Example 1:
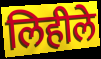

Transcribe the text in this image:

लिहीले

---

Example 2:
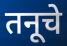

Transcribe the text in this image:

तनूचे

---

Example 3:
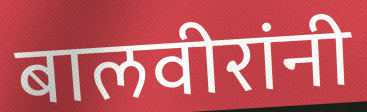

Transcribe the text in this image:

बालवीरांनी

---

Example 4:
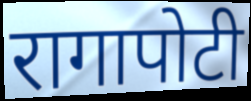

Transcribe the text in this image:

रागापोटी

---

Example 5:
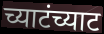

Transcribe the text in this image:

च्याटंच्याट